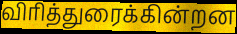
விரித்துரைக்கின்றன